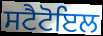
ਸਟੈਟੋਇਲ